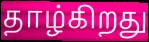
தாழ்கிறது